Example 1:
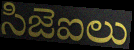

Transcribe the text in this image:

సిజెఐలు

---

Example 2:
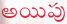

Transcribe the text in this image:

అయిపు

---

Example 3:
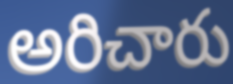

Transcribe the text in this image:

అరిచారు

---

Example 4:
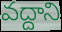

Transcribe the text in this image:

వద్దాని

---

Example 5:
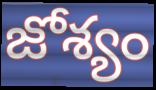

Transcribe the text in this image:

జోశ్యం